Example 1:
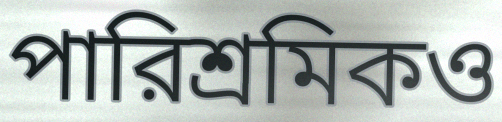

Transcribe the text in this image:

পারিশ্রমিকও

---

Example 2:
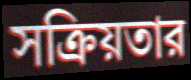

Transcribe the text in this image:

সক্রিয়তার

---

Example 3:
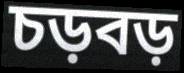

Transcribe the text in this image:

চড়বড়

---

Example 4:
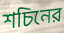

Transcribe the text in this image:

শচিনের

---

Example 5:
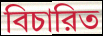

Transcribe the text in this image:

বিচারিত